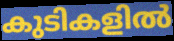
കുടികളിൽ